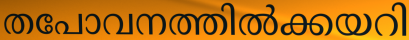
തപോവനത്തിൽക്കയറി